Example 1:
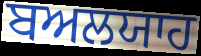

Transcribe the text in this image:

ਬਅਲਯਾਹ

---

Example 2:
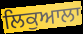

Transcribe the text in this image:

ਲਿਕੁਆਲਾ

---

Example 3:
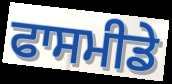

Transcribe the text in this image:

ਫਾਸਮੀਡੇ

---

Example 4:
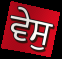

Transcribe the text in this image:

ਵੇਸੁ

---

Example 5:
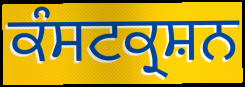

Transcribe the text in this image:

ਕੰਸਟਕ੍ਰਸ਼ਨ